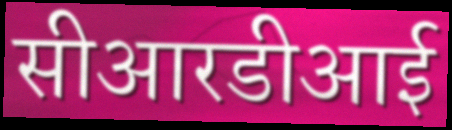
सीआरडीआई